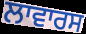
ਲਾਵਾਰਸ